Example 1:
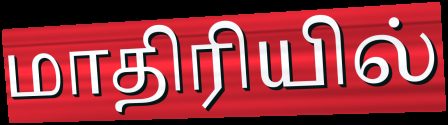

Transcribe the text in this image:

மாதிரியில்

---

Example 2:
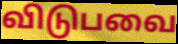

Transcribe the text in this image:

விடுபவை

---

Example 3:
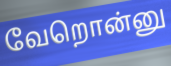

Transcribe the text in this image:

வேறொன்னு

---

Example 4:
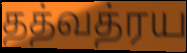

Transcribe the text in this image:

தத்வத்ரய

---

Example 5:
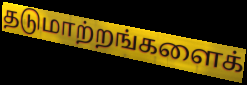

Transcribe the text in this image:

தடுமாற்றங்களைக்